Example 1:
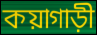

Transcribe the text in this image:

কয়াগাড়ী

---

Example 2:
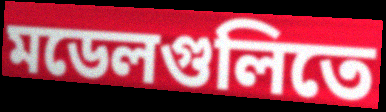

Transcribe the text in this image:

মডেলগুলিতে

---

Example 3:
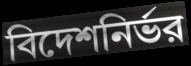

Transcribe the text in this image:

বিদেশনির্ভর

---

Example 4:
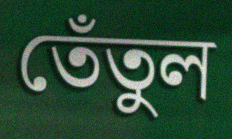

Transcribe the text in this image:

তেঁতুল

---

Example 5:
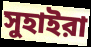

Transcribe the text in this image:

সুহাইরা